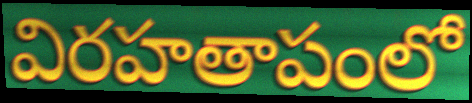
విరహతాపంలో